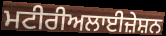
ਮਟੀਰੀਅਲਾਈਜ਼ੇਸ਼ਨ